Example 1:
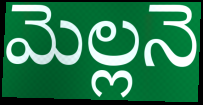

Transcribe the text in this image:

మెల్లనె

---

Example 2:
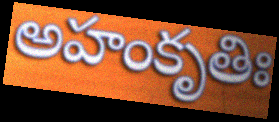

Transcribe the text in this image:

అహంకృతిః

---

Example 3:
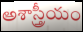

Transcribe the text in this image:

అశాస్త్రీయం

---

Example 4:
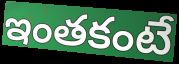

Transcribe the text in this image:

ఇంతకంటే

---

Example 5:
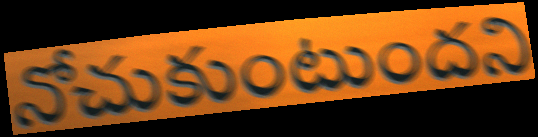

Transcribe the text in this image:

నోచుకుంటుందని